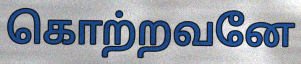
கொற்றவனே